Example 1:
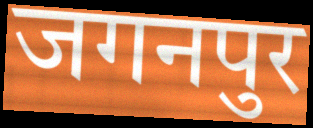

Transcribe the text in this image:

जगनपुर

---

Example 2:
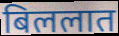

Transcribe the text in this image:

बिललात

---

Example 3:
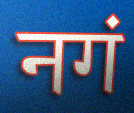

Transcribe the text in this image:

नगं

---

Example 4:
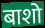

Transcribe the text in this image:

बाशो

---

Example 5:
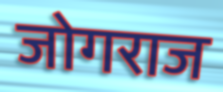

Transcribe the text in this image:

जोगराज